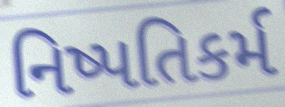
નિષ્પતિકર્મ